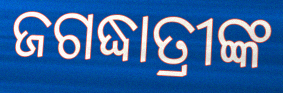
ଜଗଦ୍ଧାତ୍ରୀଙ୍କ